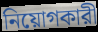
নিয়োগকারী